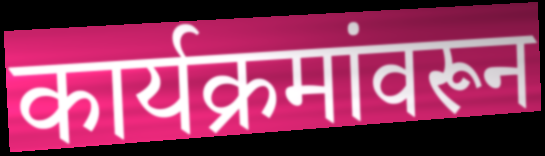
कार्यक्रमांवरून